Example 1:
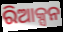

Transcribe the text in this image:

ରିଆକ୍ସନ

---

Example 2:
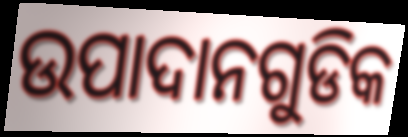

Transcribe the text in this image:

ଉପାଦାନଗୁଡିକ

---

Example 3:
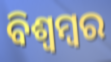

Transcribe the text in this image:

ବିଶ୍ଵମ୍ବର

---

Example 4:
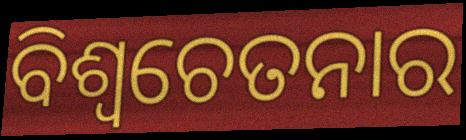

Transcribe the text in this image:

ବିଶ୍ଵଚେତନାର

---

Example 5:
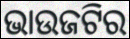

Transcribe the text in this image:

ଭାଉଜଟିର